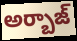
అర్బాజ్